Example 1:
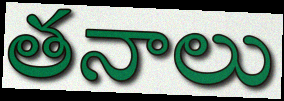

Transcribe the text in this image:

తనాలు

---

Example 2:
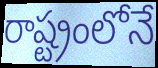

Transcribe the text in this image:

రాష్ట్రంలోనే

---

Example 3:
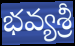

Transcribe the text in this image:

భవ్యశ్రీ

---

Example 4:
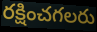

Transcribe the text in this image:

రక్షించగలరు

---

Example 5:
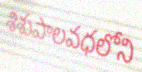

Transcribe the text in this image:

శిశుపాలవధలోని